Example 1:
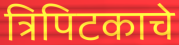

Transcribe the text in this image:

त्रिपिटकाचे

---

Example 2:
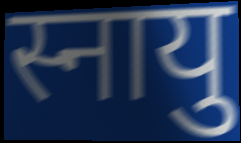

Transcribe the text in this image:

स्नायु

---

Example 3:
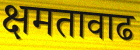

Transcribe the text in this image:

क्षमतावाढ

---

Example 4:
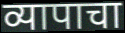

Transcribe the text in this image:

व्यापाचा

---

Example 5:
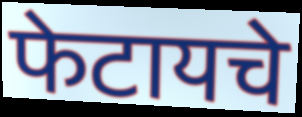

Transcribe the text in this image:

फेटायचे